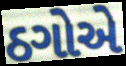
ઠગોએ